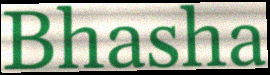
Bhasha